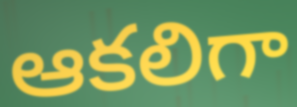
ఆకలిగా